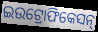
ଇଉଟ୍ରୋଫିକେସନ୍